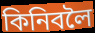
কিনিবলৈ